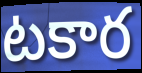
టకార